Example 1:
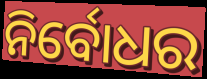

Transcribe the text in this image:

ନିର୍ବୋଧର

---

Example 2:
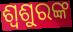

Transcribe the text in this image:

ଶ୍ୱଶୁରଙ୍କ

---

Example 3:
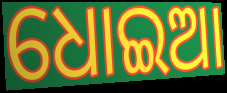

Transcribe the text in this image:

ଧୋଇଆ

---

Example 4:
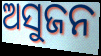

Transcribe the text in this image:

ଅସୁଜନ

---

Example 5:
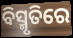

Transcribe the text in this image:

ବିସ୍ମୃତିରେ